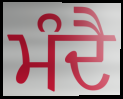
ਮੰਦੈ